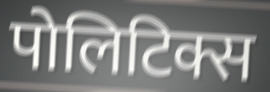
पोलिटिक्स